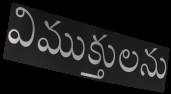
విముక్తులను